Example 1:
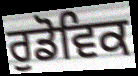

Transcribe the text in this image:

ਰੁਡੋਵਿਕ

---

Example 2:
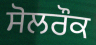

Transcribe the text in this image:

ਸੋਲਰੌਕ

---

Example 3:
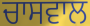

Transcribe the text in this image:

ਚਾਸਵਾਲ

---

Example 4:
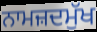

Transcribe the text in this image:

ਨਾਮਜ਼ਦਮੁੱਖ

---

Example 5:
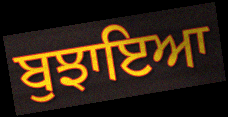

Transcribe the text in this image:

ਬੁਝਾਇਆ